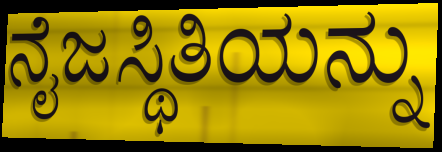
ನೈಜಸ್ಥಿತಿಯನ್ನು